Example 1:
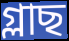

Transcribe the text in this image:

গ্লাছ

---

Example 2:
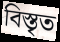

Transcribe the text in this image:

বিস্তৃত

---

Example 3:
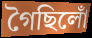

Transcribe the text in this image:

গৈছিলোঁ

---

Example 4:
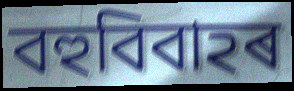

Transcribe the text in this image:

বহুবিবাহৰ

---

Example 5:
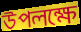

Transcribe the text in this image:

উপলক্ষে